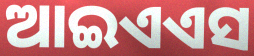
ଆଇଏଏସ